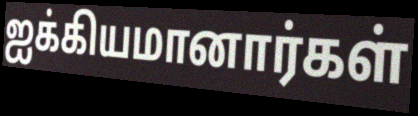
ஐக்கியமானார்கள்